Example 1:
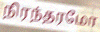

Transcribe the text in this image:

நிரந்தரமோ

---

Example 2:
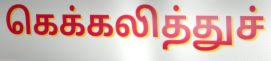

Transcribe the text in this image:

கெக்கலித்துச்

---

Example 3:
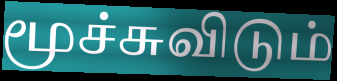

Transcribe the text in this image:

மூச்சுவிடும்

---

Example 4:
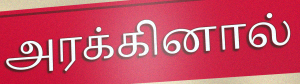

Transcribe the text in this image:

அரக்கினால்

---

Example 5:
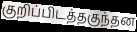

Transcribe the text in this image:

குறிப்பிடத்தகுந்தன